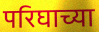
परिघाच्या